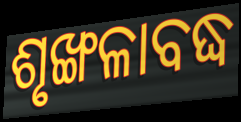
ଶୃଙ୍ଖଳାବଦ୍ଧ